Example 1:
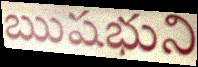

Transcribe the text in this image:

ఋషభుని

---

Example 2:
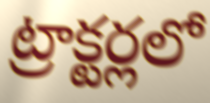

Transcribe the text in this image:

ట్రాక్టర్లలో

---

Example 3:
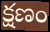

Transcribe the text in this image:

క్షణం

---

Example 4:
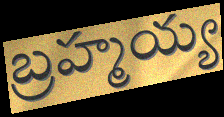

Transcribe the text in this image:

బ్రహ్మయ్య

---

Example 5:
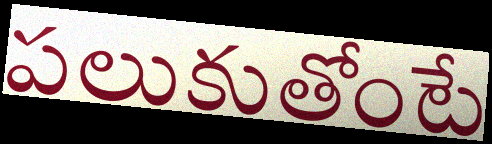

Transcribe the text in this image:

పలుకుతోంటే